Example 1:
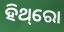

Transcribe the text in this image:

ହିଥ୍‌ରୋ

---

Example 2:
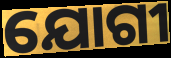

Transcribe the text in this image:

ଯୋଗୀ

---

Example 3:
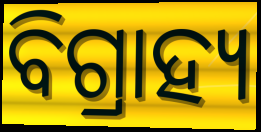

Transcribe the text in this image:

ବିଗ୍ରାହ୍ୟ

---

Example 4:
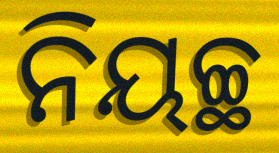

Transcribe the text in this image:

ନିୟଚ୍ଛ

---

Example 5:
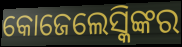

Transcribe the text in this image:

କୋଜେଲେସ୍କିଙ୍କର